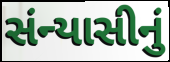
સંન્યાસીનું